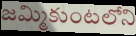
జమ్మికుంటలోని